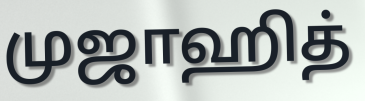
முஜாஹித்